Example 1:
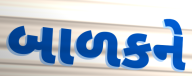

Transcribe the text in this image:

બાળકને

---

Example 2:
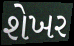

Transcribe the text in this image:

શેખર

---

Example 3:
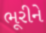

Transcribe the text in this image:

ભૂરીને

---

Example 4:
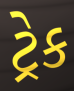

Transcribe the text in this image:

ટ્રેક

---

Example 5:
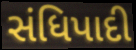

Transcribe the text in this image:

સંધિપાદી